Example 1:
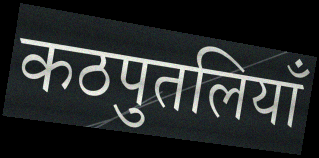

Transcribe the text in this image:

कठपुतलियाँ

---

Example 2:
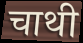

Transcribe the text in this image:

चाथी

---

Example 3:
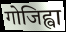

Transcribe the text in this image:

गोजिह्वा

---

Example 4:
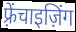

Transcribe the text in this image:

फ़्रेंचाइज़िंग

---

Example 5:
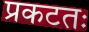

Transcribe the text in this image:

प्रकटतः